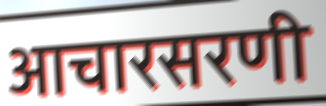
आचारसरणी